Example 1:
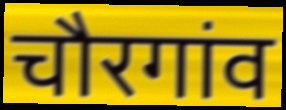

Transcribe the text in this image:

चौरगांव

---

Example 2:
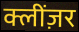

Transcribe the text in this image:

क्लींज़र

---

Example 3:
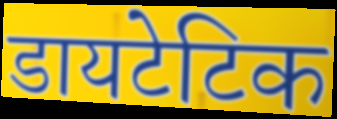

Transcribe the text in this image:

डायटेटिक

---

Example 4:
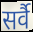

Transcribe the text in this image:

सर्वै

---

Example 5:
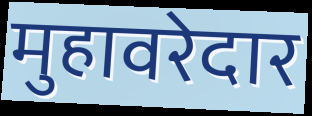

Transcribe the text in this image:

मुहावरेदार